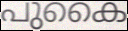
പുകൈ